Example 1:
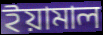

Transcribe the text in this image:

ইয়ামাল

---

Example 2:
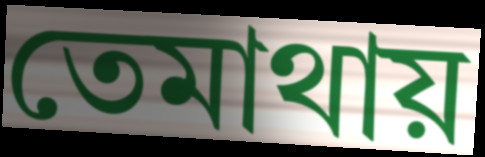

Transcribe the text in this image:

তেমাথায়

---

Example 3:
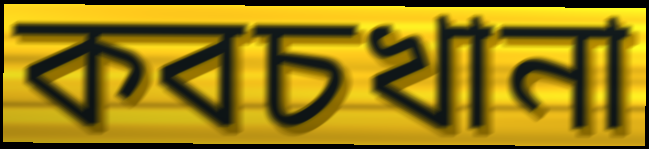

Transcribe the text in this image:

কবচখানা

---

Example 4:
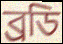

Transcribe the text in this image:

ব্রডি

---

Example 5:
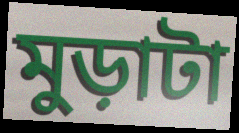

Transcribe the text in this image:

মুড়াটা